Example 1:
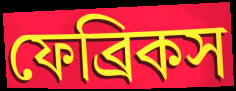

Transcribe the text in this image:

ফেব্রিকস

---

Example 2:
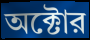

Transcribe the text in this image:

অক্টোর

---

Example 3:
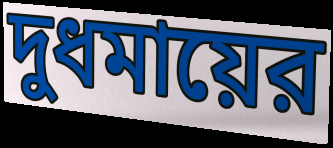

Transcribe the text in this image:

দুধমায়ের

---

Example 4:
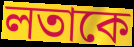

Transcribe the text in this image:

লতাকে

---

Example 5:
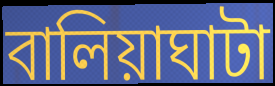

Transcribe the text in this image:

বালিয়াঘাটা